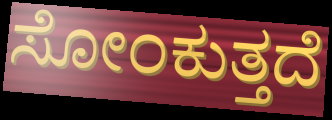
ಸೋಂಕುತ್ತದೆ